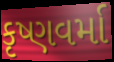
કૃષ્ણવર્મા